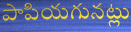
పాపియగునట్లు